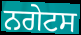
ਨਗੇਟਸ